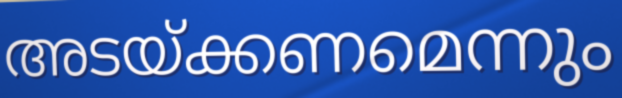
അടയ്ക്കണമെന്നും